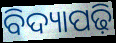
ବିଦ୍ୟାପଢ଼ି